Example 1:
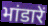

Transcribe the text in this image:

भांडारें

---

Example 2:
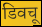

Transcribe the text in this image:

डिवचू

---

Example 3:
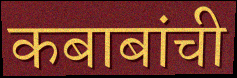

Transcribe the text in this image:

कबाबांची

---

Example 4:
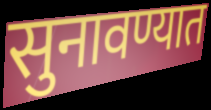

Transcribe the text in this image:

सुनावण्यात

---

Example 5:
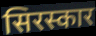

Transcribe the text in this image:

सिरस्कार